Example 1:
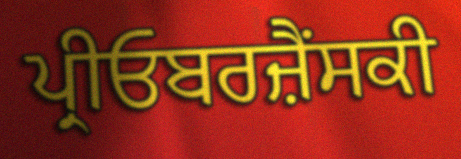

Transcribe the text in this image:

ਪ੍ਰੀਓਬਰਜ਼ੈਂਸਕੀ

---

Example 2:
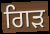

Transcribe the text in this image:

ਗਿੜ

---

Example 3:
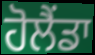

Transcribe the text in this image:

ਹੋਲੈਂਡਾ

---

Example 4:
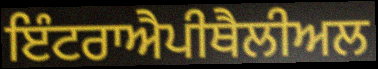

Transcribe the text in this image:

ਇੰਟਰਾਐਪੀਥੈਲੀਅਲ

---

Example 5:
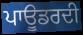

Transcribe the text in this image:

ਪਾਊਡਰਦੀ